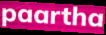
paartha